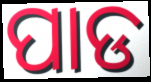
ପାଡ